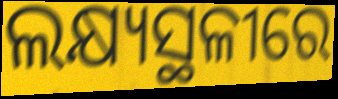
ଲକ୍ଷ୍ୟସ୍ଥଳୀରେ